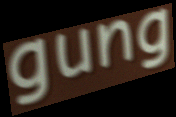
gung